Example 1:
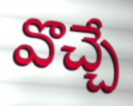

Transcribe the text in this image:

వొచ్చే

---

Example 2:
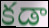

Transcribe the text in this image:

కడా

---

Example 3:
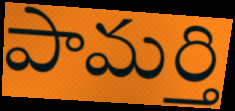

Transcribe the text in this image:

పామర్తి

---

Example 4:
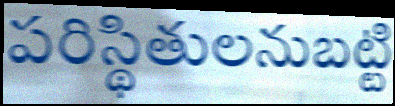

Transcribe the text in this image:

పరిస్థితులనుబట్టి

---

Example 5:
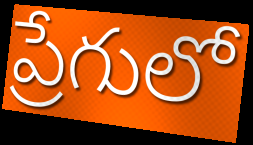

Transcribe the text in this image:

ప్రేగులో